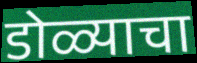
डोळ्याचा